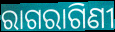
ରାଗରାଗିଣୀ